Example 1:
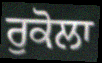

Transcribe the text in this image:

ਰੁਕੋਲਾ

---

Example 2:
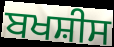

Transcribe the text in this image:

ਬਖਸ਼ੀਸ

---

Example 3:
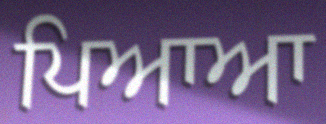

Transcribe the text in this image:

ਪਿਆਆ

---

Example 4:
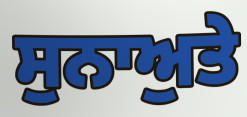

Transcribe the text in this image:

ਸੁਨਾਅੁਤੇ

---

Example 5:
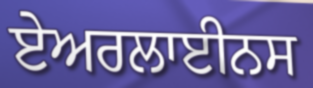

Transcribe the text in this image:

ਏਅਰਲਾਈਨਸ